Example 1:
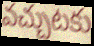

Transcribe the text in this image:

వచ్చుటకు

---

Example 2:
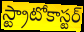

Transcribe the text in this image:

స్ట్రాటోకాస్టర్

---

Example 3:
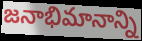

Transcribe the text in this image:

జనాభిమానాన్ని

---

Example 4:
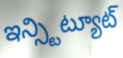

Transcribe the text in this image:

ఇన్స్టిట్యూట్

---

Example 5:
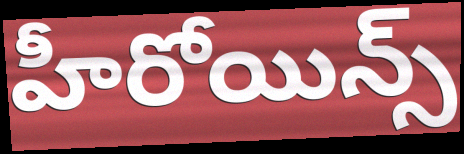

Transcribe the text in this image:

హీరోయిన్స్